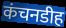
कंचनडीह